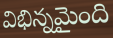
విభిన్నమైంది